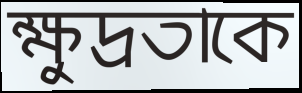
ক্ষুদ্রতাকে